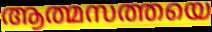
ആത്മസത്തയെ